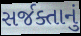
સર્જક્તાનું